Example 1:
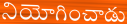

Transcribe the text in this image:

నియోగించాడు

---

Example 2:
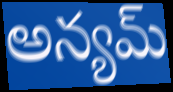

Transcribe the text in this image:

అన్యమ్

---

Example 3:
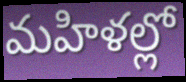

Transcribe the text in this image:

మహిళల్లో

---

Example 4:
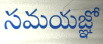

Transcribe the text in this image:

సమయజ్ఞో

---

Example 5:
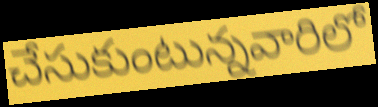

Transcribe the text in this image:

చేసుకుంటున్నవారిలో